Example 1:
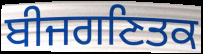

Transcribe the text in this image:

ਬੀਜਗਣਿਤਕ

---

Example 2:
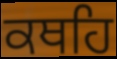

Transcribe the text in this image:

ਕਥਹਿ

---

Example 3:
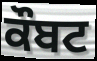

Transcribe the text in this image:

ਕੌਬਟ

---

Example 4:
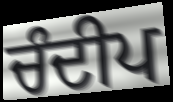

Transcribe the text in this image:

ਚੰਦੀਪ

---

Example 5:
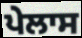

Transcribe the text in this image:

ਪੇਲਾਸ